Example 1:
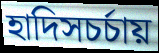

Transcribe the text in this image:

হাদিসচর্চায়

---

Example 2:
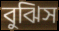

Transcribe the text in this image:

বুঝিস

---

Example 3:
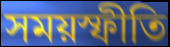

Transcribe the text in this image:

সময়স্ফীতি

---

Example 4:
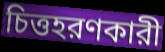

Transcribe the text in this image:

চিত্তহরণকারী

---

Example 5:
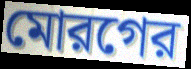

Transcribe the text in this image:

মোরগের